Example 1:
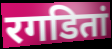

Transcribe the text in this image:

रगडितां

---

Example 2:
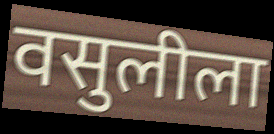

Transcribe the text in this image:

वसुलीला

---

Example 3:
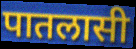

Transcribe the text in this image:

पातलासी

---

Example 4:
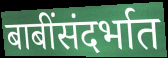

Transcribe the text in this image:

बाबींसंदर्भात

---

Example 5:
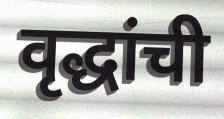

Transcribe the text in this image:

वृद्धांची